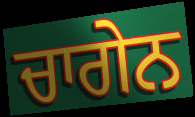
ਚਾਗੇਨ